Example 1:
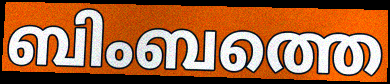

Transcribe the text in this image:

ബിംബത്തെ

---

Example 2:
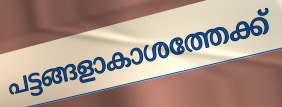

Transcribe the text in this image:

പട്ടങ്ങളാകാശത്തേക്ക്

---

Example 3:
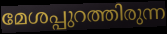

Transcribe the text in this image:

മേശപ്പുറത്തിരുന്ന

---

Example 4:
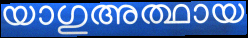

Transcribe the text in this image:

യാഗുഅത്ഥായ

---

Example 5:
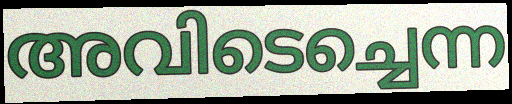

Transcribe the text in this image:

അവിടെച്ചെന്ന